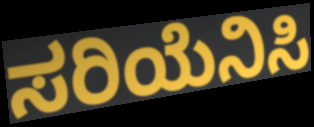
ಸರಿಯೆನಿಸಿ